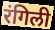
रंगिली